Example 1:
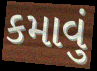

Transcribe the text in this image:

કમાવું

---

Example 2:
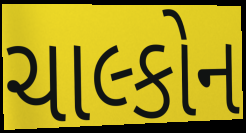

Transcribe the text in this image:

ચાલ્કોન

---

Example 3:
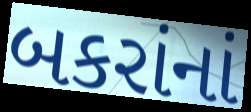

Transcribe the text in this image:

બકરાંનાં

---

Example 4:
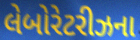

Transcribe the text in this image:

લેબોરેટરીઝના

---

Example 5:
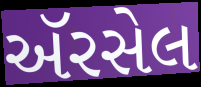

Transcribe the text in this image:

ઍરસેલ